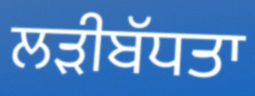
ਲੜੀਬੱਧਤਾ